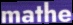
mathe